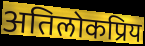
अतिलोकप्रिय